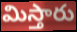
మిస్తారు